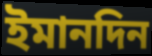
ইমানদিন